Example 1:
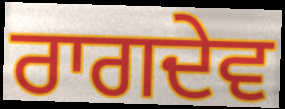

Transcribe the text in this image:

ਰਾਗਦੇਵ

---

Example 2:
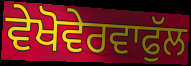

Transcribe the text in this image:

ਵੇਖੋਵੇਰਵਾਫੁੱਲ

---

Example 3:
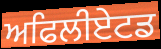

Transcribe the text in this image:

ਅਫਿਲੀਏਟਡ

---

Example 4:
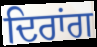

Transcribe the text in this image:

ਦਿਰਾਂਗ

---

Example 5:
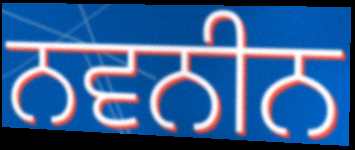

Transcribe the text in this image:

ਨਵਨੀਨ